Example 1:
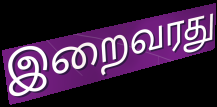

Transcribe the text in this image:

இறைவரது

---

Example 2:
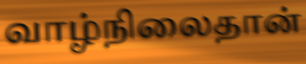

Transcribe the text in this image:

வாழ்நிலைதான்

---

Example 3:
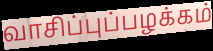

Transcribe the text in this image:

வாசிப்புப்பழக்கம்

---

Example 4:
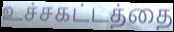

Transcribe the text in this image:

உச்சகட்டத்தை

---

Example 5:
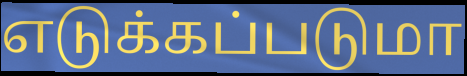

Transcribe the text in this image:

எடுக்கப்படுமா